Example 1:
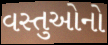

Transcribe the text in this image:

વસ્તુઓનો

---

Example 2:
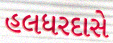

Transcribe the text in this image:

હલધરદાસે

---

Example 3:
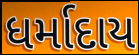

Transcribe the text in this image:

ધર્માદાય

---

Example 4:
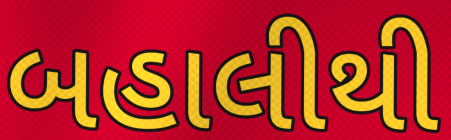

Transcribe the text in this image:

બહાલીથી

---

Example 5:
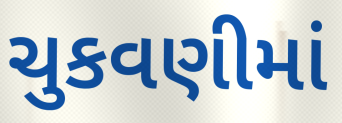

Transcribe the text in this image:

ચુકવણીમાં